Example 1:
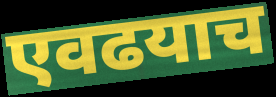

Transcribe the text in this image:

एवढयाच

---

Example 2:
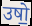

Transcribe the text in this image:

उषो॒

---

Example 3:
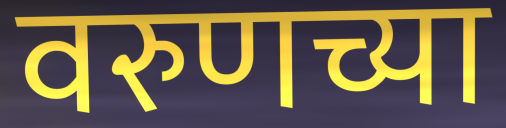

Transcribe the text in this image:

वरुणच्या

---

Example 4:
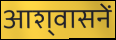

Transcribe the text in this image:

आश्वासनें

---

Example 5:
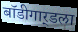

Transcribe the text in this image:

बॉडीगार्डला